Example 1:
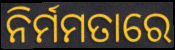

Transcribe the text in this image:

ନିର୍ମମତାରେ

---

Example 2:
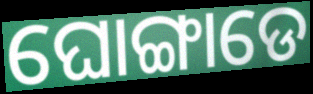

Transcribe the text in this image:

ଘୋଙ୍ଗାଡେ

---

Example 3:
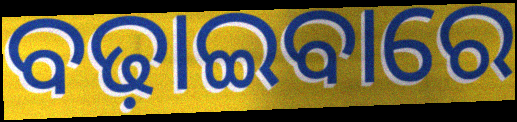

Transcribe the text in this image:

ବଢ଼ାଇବାରେ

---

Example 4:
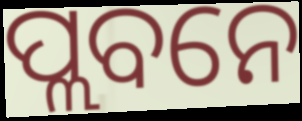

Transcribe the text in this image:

ପ୍ଲବନେ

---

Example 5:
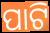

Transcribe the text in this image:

ପାଟି